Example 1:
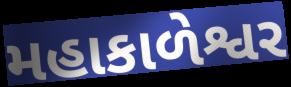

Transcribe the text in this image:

મહાકાળેશ્વર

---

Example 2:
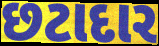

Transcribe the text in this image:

છટાદાર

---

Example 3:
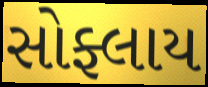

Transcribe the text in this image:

સોફ્લાય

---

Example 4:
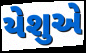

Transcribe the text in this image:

યેશુએ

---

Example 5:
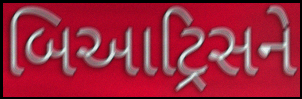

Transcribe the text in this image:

બિઆટ્રિસને